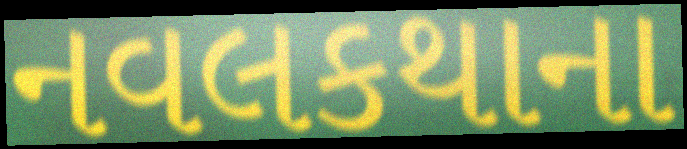
નવલકથાના